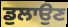
ਡੁਲਾਉਣ